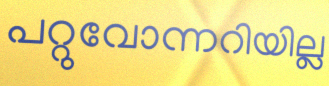
പറ്റുവോന്നറിയില്ല